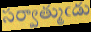
సర్వాత్ముఁడు